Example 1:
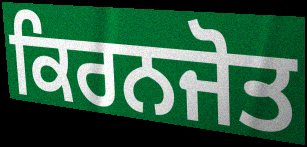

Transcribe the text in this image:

ਕਿਰਨਜੋਤ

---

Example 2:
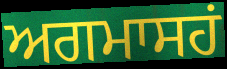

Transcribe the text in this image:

ਅਗਮਾਸਹਂ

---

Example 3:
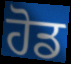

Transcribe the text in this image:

ਹੋਡ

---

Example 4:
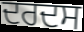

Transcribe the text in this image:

ਦਰਦਸ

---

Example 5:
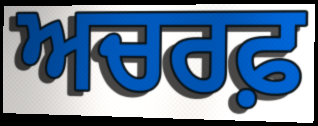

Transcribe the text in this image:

ਅਚਰਫ਼